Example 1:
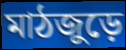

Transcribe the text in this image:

মাঠজুড়ে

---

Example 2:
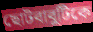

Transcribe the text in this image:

ছোটবাবুটিকে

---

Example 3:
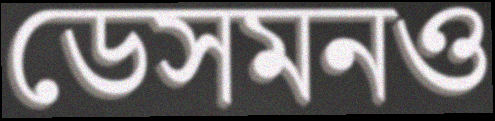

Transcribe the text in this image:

ডেসমনও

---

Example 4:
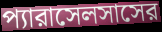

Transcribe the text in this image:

প্যারাসেলসাসের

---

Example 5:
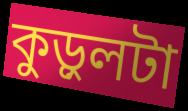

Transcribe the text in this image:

কুড়ুলটা